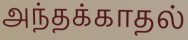
அந்தக்காதல்